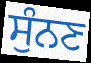
ਸੁੰਨਣ